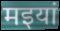
मइयां